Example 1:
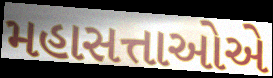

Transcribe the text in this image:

મહાસત્તાઓએ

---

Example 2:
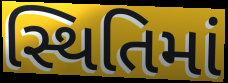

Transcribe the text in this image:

સ્થિતિમાં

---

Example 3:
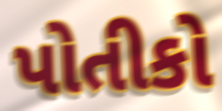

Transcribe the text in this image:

પોતીકો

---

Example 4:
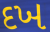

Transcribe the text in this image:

દખ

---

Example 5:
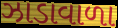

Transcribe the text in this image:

ઝાડાવાળા